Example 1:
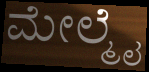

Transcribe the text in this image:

ಮೇಲ್ಮೈ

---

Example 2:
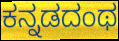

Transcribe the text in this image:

ಕನ್ನಡದಂಥ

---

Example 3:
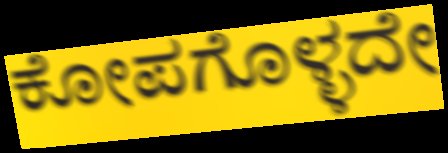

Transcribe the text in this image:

ಕೋಪಗೊಳ್ಳದೇ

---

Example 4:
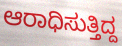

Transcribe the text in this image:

ಆರಾಧಿಸುತ್ತಿದ್ದ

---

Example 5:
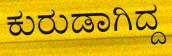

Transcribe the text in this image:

ಕುರುಡಾಗಿದ್ದ